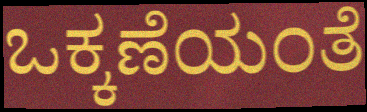
ಒಕ್ಕಣೆಯಂತೆ